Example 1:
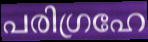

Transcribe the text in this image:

പരിഗ്രഹേ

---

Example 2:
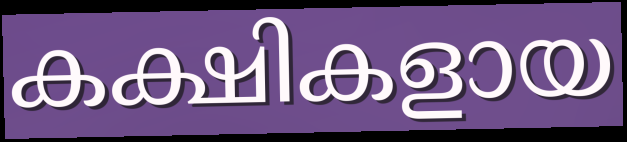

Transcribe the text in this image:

കക്ഷികളായ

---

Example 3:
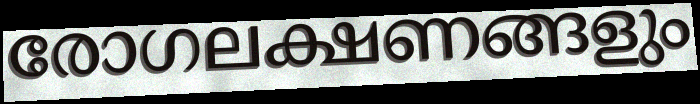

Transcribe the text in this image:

രോഗലക്ഷണങ്ങളും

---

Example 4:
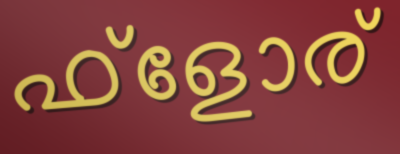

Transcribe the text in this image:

ഫ്ളോര്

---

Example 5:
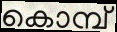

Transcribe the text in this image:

കൊമ്പ്